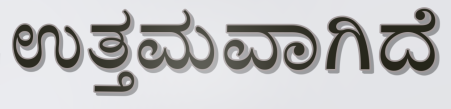
ಉತ್ತಮವಾಗಿದೆ